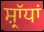
ਸ਼੍ਰਾੱਧਾਂ